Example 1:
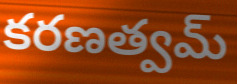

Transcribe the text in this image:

కరణత్వమ్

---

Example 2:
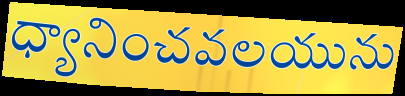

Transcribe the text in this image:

ధ్యానించవలయును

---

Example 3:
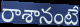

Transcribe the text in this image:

రాశానంటే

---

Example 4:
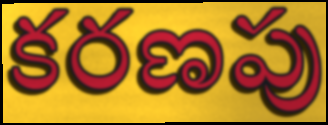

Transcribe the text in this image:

కరణపు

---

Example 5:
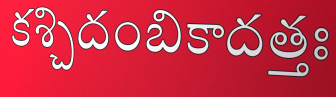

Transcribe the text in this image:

కశ్చిదంబికాదత్తః